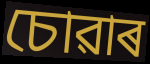
চোৱাৰ